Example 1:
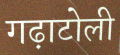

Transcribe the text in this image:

गढ़ाटोली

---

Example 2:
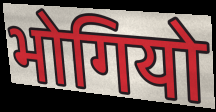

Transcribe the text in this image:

भोगियो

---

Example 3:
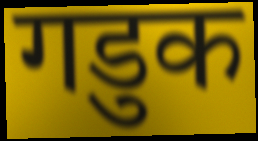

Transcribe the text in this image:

गडुक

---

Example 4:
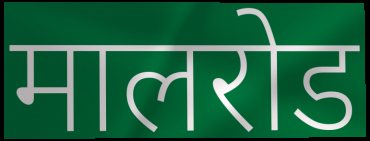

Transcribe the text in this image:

मालरोड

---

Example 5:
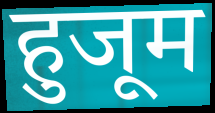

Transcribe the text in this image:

हुजूम